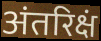
अंतरिक्षं